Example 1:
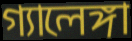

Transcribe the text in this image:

গ্যালেঙ্গা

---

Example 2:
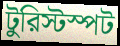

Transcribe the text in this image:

টুরিস্টস্পট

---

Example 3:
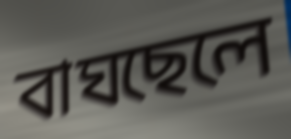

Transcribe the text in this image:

বাঘছেলে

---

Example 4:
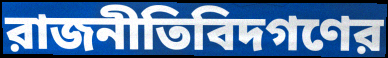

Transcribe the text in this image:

রাজনীতিবিদগণের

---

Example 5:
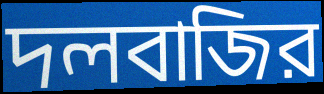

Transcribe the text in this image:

দলবাজির